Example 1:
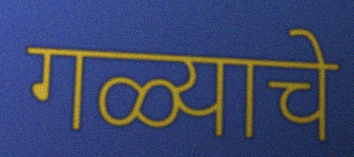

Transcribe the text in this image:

गळ्याचे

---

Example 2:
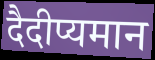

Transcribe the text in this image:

दैदीप्यमान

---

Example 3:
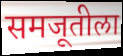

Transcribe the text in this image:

समजूतीला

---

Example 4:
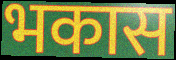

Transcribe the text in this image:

भकास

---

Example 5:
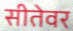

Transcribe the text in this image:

सीतेवर